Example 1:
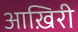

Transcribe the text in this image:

आख़िरी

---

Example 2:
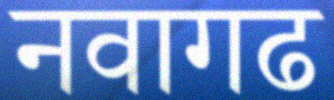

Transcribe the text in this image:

नवागढ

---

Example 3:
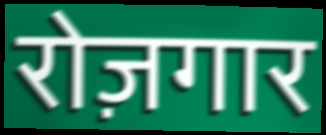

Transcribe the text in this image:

रोज़गार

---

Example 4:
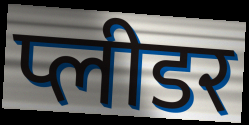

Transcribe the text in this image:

प्लीडर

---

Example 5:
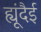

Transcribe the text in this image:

ह्यूंदैई